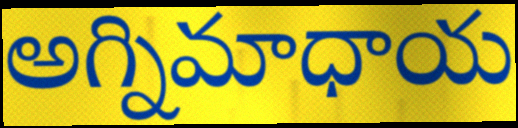
అగ్నిమాధాయ